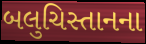
બલુચિસ્તાનના